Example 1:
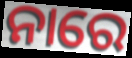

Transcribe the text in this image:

ନାରେ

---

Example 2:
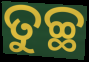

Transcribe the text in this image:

ତୁଚ୍ଛ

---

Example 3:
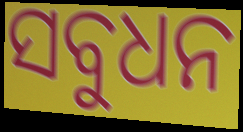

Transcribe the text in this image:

ସବୁଧନ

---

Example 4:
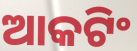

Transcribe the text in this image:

ଆକଟିଂ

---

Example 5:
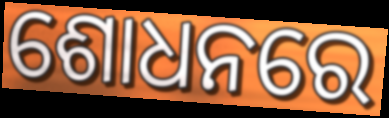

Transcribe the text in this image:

ଶୋଧନରେ